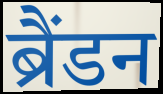
ब्रैंडन